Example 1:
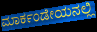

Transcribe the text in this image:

ಮಾರ್ಕಂಡೇಯನಲ್ಲಿ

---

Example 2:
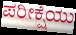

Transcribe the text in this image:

ಪರೀಕ್ಷೆಯು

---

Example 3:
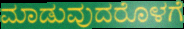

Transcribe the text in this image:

ಮಾಡುವುದರೊಳಗೆ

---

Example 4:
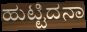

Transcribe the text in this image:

ಹುಟ್ಟಿದನಾ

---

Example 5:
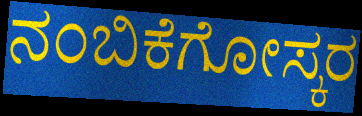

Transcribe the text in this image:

ನಂಬಿಕೆಗೋಸ್ಕರ